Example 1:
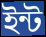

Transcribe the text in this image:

ইন্ট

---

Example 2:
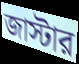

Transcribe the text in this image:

জাস্টার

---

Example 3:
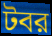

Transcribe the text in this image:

টবর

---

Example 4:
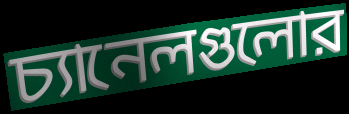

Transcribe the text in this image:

চ্যানেলগুলোর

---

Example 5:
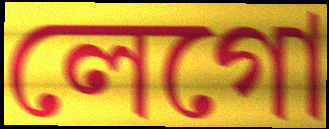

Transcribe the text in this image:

লেগো